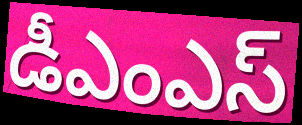
డీఎంఎస్